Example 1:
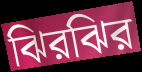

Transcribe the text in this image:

ঝিরঝির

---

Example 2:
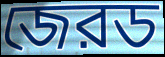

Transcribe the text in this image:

জেরড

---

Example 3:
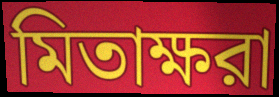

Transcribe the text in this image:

মিতাক্ষরা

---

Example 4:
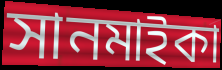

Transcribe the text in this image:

সানমাইকা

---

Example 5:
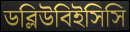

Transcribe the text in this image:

ডব্লিউবিইসিসি